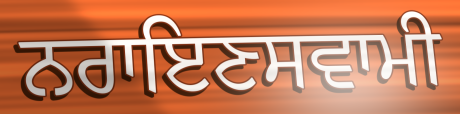
ਨਰਾਇਣਸਵਾਮੀ